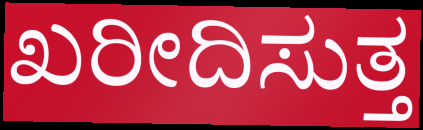
ಖರೀದಿಸುತ್ತ